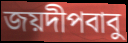
জয়দীপবাবু